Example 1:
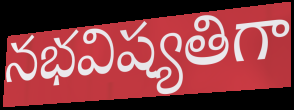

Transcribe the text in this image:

నభవిష్యతిగా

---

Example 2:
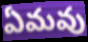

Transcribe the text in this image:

ఏమవు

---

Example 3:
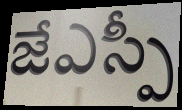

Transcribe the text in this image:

జేఎస్పీ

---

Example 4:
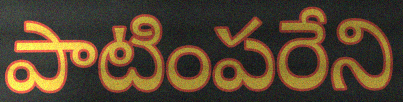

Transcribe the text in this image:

పాటింపరేని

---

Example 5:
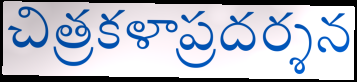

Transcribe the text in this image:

చిత్రకళాప్రదర్శన